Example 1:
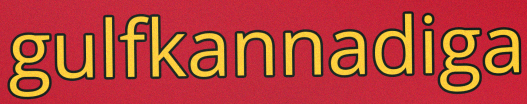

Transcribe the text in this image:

gulfkannadiga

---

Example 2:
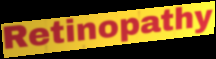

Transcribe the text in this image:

Retinopathy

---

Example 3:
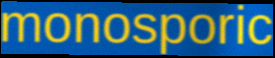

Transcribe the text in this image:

monosporic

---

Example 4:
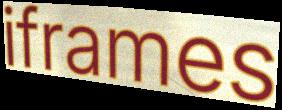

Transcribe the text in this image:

iframes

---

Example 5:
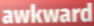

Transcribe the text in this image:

awkward